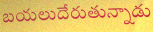
బయలుదేరుతున్నాడు